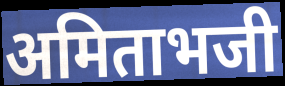
अमिताभजी